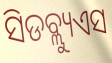
ସିଡବ୍ଲ୍ୟୁଏସ